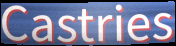
Castries